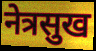
नेत्रसुख